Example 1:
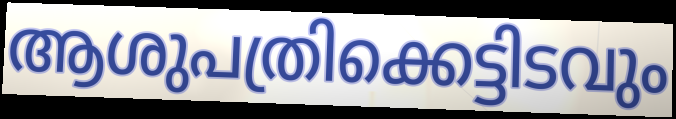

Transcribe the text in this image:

ആശുപത്രിക്കെട്ടിടവും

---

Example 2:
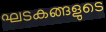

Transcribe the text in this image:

ഘടകങ്ങളുടെ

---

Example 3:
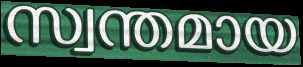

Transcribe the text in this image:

സ്വന്തമായ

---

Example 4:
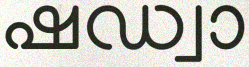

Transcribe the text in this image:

ഷഡ്വാ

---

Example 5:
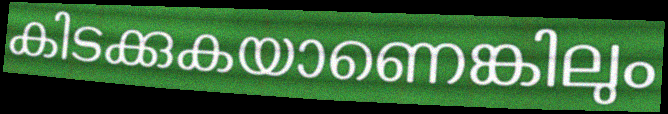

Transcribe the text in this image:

കിടക്കുകയാണെങ്കിലും